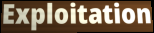
Exploitation